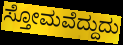
ಸ್ತೋಮವೆದ್ದುದು